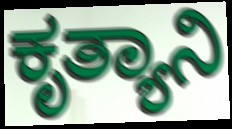
ಕೃತ್ಯಾನಿ